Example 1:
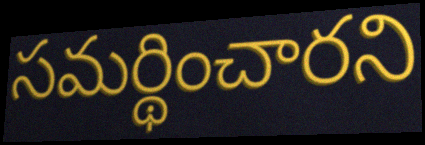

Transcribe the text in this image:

సమర్థించారని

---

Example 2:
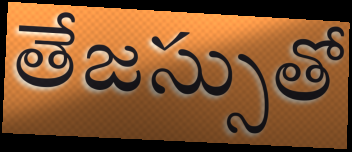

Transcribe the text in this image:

తేజస్సుతో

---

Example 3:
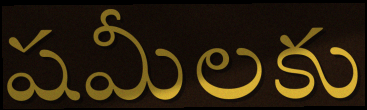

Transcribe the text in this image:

షమీలకు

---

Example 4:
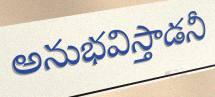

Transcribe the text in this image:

అనుభవిస్తాడనీ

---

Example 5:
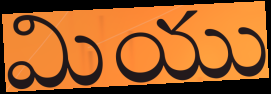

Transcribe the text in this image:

మియు